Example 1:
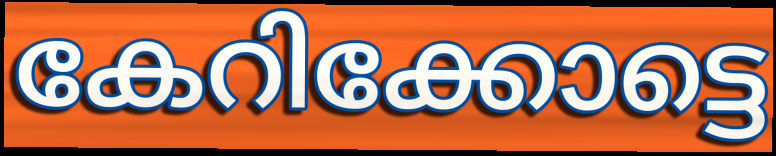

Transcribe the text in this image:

കേറിക്കോട്ടെ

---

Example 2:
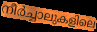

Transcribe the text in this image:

നീർച്ചാലുകളിലെ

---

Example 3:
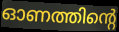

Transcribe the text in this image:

ഓണത്തിന്റെ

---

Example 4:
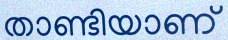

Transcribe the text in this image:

താണ്ടിയാണ്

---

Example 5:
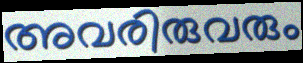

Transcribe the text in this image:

അവരിരുവരും